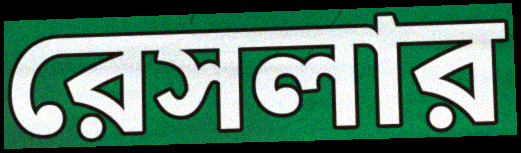
রেসলার